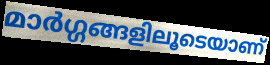
മാർഗ്ഗങ്ങളിലൂടെയാണ്